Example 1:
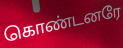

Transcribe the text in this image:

கொண்டனரே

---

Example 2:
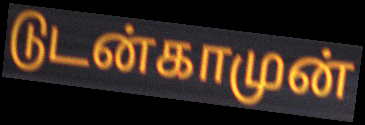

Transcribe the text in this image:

டுடன்காமுன்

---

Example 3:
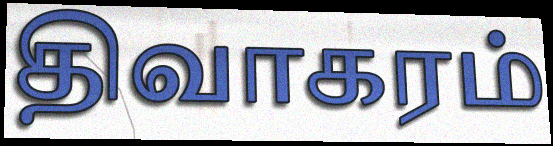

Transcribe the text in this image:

திவாகரம்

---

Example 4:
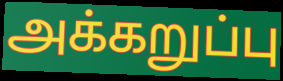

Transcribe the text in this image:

அக்கறுப்பு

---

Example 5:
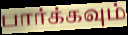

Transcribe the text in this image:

பார்க்கவும்